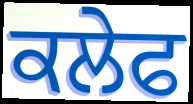
ਕਲੇਫ